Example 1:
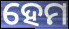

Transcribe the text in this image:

ହେମ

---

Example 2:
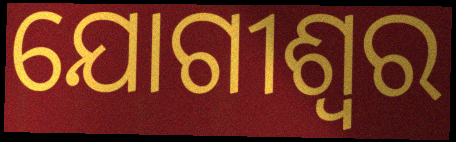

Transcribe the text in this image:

ଯୋଗୀଶ୍ୱର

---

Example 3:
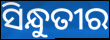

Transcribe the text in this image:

ସିନ୍ଧୁତୀର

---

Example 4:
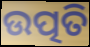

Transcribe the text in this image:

ଉତ୍ପତି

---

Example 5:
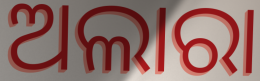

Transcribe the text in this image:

ଅଲାରା